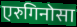
एरुगिनोसा